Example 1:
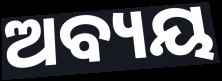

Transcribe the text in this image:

ଅବ୍ୟୟ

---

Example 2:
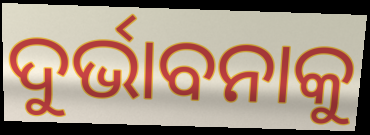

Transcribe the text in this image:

ଦୁର୍ଭାବନାକୁ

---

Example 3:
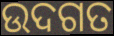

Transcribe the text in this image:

ଉଦଗତ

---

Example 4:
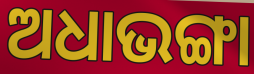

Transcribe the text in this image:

ଅଧାଭଙ୍ଗା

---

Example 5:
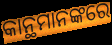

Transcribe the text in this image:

କାନ୍ଥମାନଙ୍କରେ